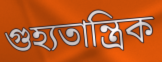
গুহ্যতান্ত্ৰিক